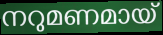
നറുമണമായ്